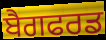
ਬੈਗਫਰਡ